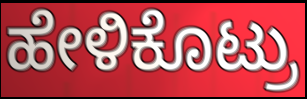
ಹೇಳಿಕೊಟ್ರು